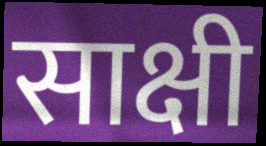
साक्षी